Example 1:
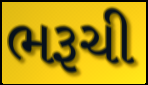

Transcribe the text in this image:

ભરૂચી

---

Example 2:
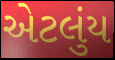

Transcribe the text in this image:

એટલુંય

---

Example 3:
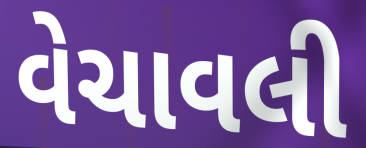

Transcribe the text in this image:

વેચાવલી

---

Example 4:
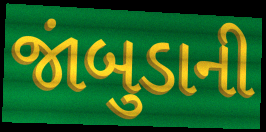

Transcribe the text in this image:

જાંબુડાની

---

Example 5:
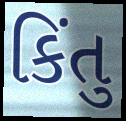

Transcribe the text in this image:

કિંતુ